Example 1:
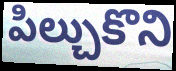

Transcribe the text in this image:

పిల్చుకొని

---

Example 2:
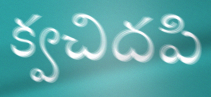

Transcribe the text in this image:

క్వచిదపి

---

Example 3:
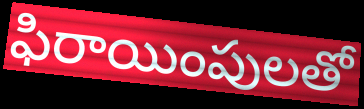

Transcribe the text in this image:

ఫిరాయింపులతో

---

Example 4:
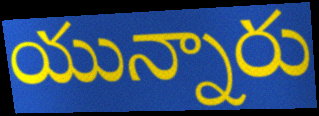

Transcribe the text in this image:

యున్నారు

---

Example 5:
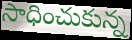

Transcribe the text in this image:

సాధించుకున్న